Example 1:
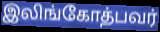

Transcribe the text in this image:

இலிங்கோத்பவர்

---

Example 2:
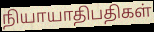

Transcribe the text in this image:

நியாயாதிபதிகள்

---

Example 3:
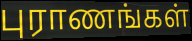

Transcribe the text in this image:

புராணங்கள்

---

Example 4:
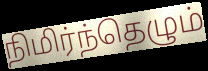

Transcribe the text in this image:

நிமிர்ந்தெழும்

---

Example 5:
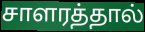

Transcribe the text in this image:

சாளரத்தால்